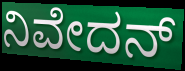
ನಿವೇದನ್